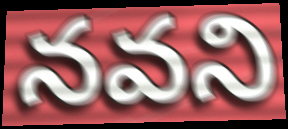
నవని